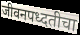
जीवनपध्दतीचा